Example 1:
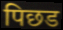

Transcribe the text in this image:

पिछड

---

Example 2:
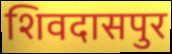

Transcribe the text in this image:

शिवदासपुर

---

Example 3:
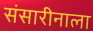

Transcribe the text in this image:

संसारीनाला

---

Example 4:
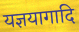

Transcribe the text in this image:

यज्ञयागादि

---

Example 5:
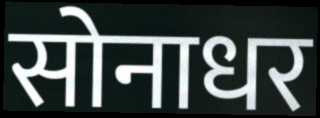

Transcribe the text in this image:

सोनाधर